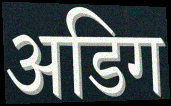
अडिग